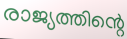
രാജ്യത്തിന്റെ